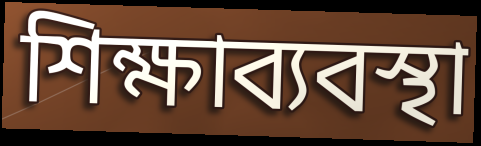
শিক্ষাব্যবস্থা